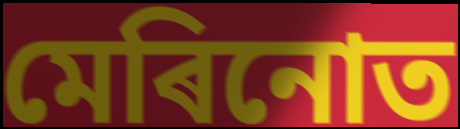
মেৰিনোত